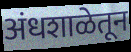
अंधशाळेतून